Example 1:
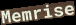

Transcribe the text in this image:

Memrise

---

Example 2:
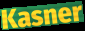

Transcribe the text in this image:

Kasner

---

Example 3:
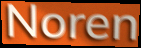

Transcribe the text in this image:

Noren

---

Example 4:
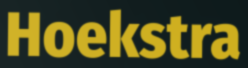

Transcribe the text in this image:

Hoekstra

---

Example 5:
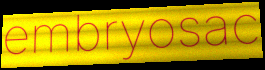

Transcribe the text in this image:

embryosac